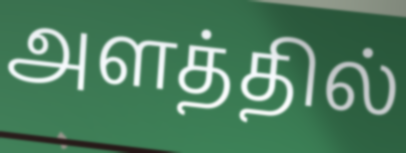
அளத்தில்